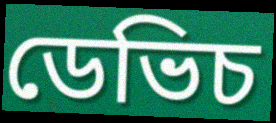
ডেভিচ